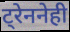
ट्रेननेही